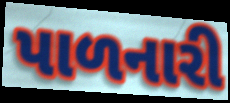
પાળનારી